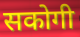
सकोगी